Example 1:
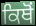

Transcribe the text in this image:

ਕਿਥੋਂ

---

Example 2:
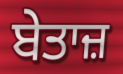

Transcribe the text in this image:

ਬੇਤਾਜ਼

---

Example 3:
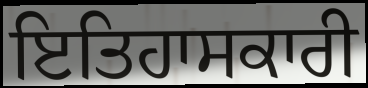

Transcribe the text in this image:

ਇਤਿਹਾਸਕਾਰੀ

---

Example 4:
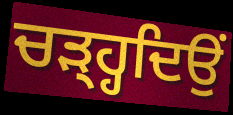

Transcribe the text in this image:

ਚੜ੍ਹ੍ਹਦਿਉਂ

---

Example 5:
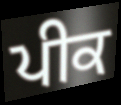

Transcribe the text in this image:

ਪੀਕ